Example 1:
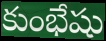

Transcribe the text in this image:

కుంభేషు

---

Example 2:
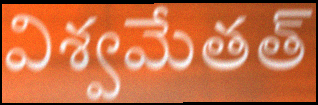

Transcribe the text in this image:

విశ్వమేతత్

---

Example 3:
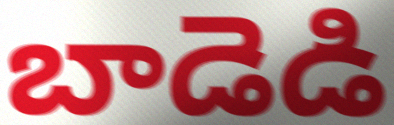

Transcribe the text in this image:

బాడెడి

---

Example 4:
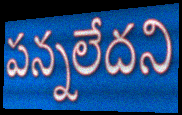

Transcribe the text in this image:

పన్నలేదని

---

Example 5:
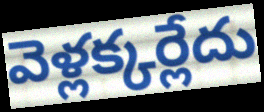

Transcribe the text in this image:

వెళ్లక్కర్లేదు